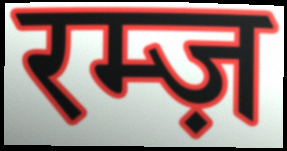
रम्ज़